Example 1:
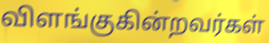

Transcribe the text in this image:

விளங்குகின்றவர்கள்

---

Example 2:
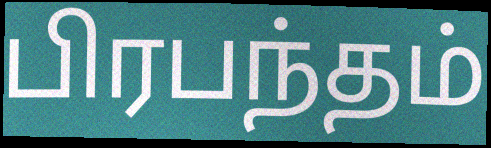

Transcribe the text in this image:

பிரபந்தம்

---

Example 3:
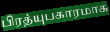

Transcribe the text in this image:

பிரத்யுபகாரமாக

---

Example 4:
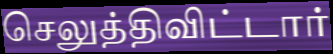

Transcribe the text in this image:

செலுத்திவிட்டார்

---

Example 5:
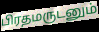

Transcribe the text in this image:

பிரதமருடனும்